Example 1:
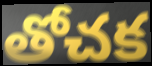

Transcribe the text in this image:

తోచక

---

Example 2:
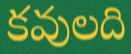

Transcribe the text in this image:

కవులది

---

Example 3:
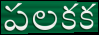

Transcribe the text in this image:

పలకక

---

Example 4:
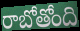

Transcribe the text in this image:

రాబోతోంది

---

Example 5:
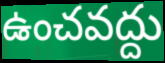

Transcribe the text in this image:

ఉంచవద్దు